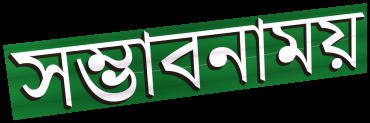
সম্ভাবনাময়